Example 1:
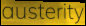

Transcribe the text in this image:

austerity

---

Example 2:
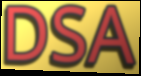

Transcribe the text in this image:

DSA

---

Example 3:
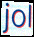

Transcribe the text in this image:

jol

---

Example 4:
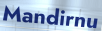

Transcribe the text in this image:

Mandirnu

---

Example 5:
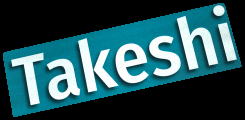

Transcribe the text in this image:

Takeshi